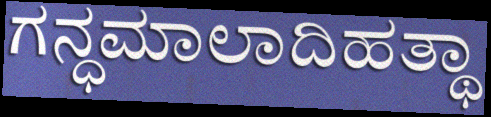
ಗನ್ಧಮಾಲಾದಿಹತ್ಥಾ